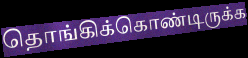
தொங்கிக்கொண்டிருக்க